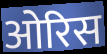
ओरिस